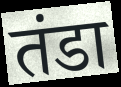
तंडा